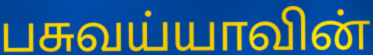
பசுவய்யாவின்